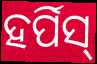
ହର୍ପିସ୍